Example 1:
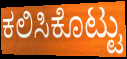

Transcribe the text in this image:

ಕಲಿಸಿಕೊಟ್ಟು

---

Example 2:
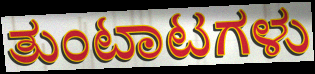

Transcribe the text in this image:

ತುಂಟಾಟಗಳು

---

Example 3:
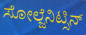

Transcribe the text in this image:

ಸೋಲ್ಜೆನಿಟ್ಸಿನ್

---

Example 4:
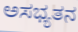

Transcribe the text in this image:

ಅಸಭ್ಯತನ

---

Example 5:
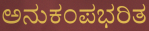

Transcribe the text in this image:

ಅನುಕಂಪಭರಿತ